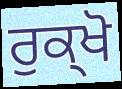
ਰੁਕ੍ਖੋ